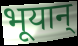
भूयान्